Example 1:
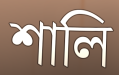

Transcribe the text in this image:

শালি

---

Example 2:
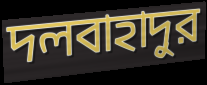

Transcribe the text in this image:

দলবাহাদুর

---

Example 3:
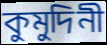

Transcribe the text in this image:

কুমুদিনী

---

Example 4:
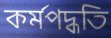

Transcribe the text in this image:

কর্মপদ্ধতি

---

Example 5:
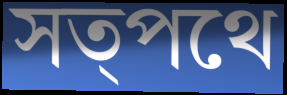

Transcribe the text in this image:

সত্পথে